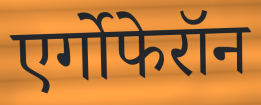
एर्गोफेरॉन